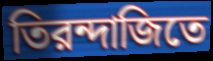
তিরন্দাজিতে